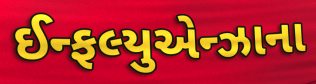
ઈન્ફલ્યુએન્ઝાના